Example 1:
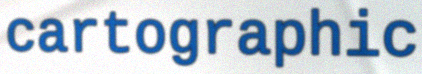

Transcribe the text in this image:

cartographic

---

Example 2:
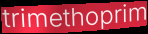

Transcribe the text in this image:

trimethoprim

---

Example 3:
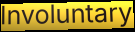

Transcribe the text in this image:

Involuntary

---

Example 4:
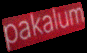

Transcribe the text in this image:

pakalum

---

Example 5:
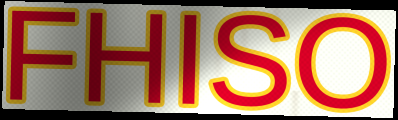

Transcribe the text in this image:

FHISO